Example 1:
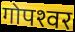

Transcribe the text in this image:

गोपश्वर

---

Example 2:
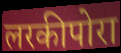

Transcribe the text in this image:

लरकीपोरा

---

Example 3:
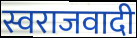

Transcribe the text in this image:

स्वराजवादी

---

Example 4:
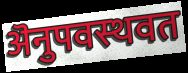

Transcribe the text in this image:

ऄनुपवस्थवत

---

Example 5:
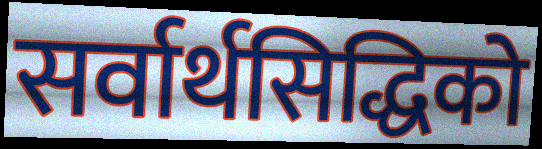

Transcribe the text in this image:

सर्वार्थसिद्धिको